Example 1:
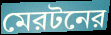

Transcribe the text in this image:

মেরটনের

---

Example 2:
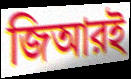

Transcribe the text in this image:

জিআরই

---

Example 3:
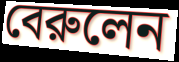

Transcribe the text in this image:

বেরুলেন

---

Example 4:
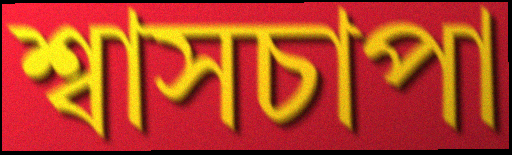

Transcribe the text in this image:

শ্বাসচাপা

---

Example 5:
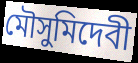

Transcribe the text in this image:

মৌসুমিদেবী